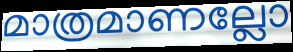
മാത്രമാണല്ലോ